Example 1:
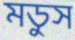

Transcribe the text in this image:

মডুস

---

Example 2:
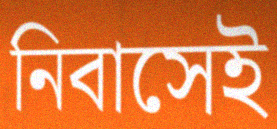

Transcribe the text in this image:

নিবাসেই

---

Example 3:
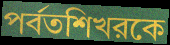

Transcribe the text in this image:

পর্বতশিখরকে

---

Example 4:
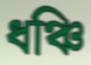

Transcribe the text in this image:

ধঞ্চি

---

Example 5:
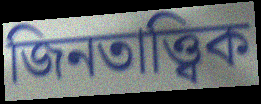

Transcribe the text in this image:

জিনতাত্ত্বিক